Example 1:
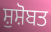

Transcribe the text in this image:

ਸ਼ੁਸ਼ੋਬਤ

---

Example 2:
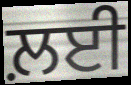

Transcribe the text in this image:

ਲ਼ਈ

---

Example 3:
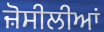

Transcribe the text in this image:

ਜ਼ੋਸੀਲੀਆਂ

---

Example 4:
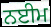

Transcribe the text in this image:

ਨਈਮ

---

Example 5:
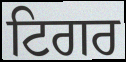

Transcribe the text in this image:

ਟਿਗਰ